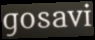
gosavi